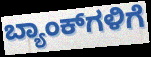
ಬ್ಯಾಂಕ್‌ಗಳಿಗೆ